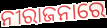
ନୀରାଜନାରେ